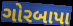
ગોરબાપા